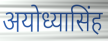
अयोध्यासिंह